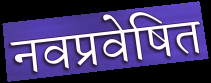
नवप्रवेषित